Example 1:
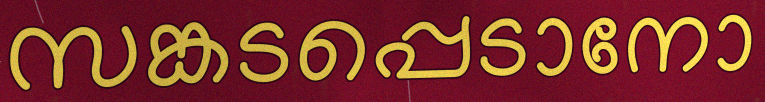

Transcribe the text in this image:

സങ്കടപ്പെടാനോ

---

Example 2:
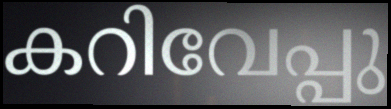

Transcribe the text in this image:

കറിവേപ്പു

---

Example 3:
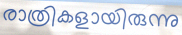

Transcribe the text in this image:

രാത്രികളായിരുന്നു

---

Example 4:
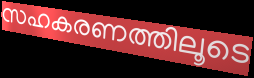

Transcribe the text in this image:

സഹകരണത്തിലൂടെ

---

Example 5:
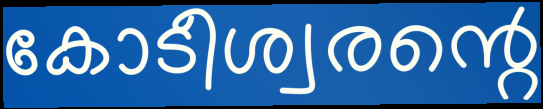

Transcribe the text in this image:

കോടീശ്വരന്റെ